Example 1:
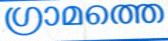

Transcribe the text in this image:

ഗ്രാമത്തെ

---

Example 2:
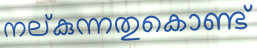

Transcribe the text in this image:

നല്കുന്നതുകൊണ്ട്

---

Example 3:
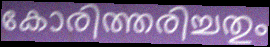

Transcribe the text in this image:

കോരിത്തരിച്ചതും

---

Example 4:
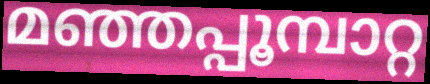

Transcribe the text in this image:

മഞ്ഞപ്പൂമ്പാറ്റ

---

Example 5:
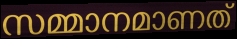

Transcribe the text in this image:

സമ്മാനമാണത്